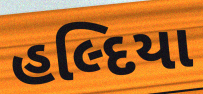
હલ્દિયા